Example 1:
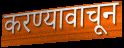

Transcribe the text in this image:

करण्यावाचून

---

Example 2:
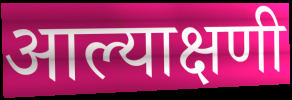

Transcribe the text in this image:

आल्याक्षणी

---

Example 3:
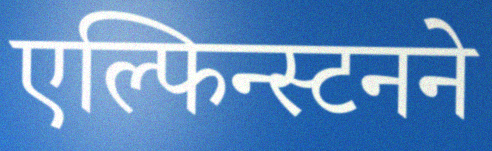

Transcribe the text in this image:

एल्फिन्स्टनने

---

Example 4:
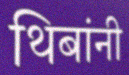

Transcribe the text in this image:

थिबांनी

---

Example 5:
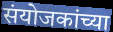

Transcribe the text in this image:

संयोजकांच्या